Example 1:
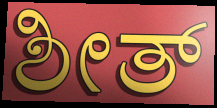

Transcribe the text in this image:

ಶೀತ್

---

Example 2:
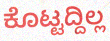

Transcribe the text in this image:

ಕೊಟ್ಟದ್ದಿಲ್ಲ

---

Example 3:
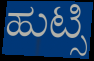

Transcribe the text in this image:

ಹುಟ್ಸಿ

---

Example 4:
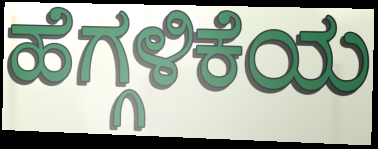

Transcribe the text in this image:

ಹೆಗ್ಗಳಿಕೆಯ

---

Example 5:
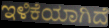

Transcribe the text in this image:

ಇಳಿಕೆಯಾಗಿದೆ